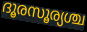
ദൂരസൂര്യശ്ച